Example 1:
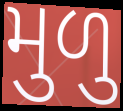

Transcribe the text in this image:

મુળુ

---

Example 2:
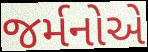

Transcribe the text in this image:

જર્મનોએ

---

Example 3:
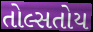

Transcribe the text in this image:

તોલ્સતોય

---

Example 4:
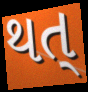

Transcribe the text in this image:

થત્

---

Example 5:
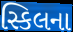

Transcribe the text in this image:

સ્કિલના